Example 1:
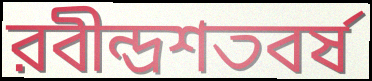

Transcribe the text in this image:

রবীন্দ্রশতবর্ষ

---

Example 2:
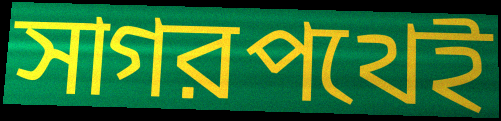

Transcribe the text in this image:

সাগরপথেই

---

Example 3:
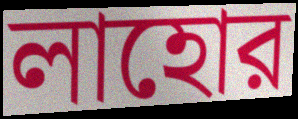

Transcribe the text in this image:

লাহোর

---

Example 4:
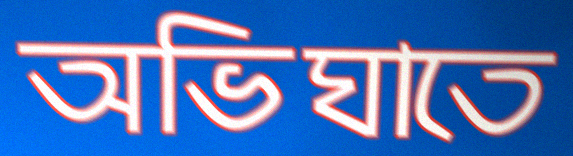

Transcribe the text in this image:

অভিঘাতে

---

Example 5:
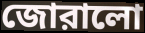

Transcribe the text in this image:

জোরালো